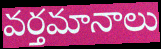
వర్తమానాలు